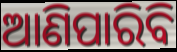
ଆଣିପାରିବି